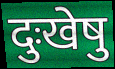
दुःखेषु